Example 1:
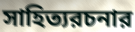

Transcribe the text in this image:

সাহিত্যরচনার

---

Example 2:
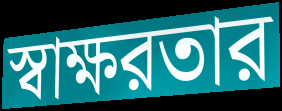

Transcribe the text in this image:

স্বাক্ষরতার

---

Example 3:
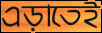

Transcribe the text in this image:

এড়াতেই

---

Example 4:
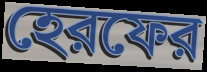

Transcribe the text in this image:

হেরফের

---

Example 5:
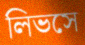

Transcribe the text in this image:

লিভসে